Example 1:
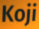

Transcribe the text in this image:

Koji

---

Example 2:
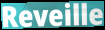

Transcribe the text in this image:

Reveille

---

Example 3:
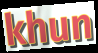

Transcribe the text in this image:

khun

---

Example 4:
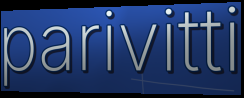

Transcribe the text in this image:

parivitti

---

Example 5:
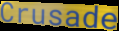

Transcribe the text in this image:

Crusade